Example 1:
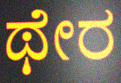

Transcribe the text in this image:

ಥೇರ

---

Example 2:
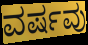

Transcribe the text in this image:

ವರ್ಷವು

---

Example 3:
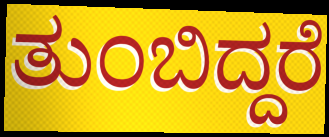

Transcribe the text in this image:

ತುಂಬಿದ್ದರೆ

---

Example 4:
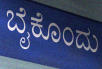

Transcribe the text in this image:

ಬೈಕೊಂದು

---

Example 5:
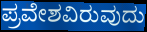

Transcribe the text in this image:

ಪ್ರವೇಶವಿರುವುದು